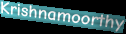
Krishnamoorthy